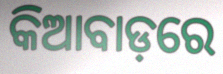
କିଆବାଡ଼ରେ